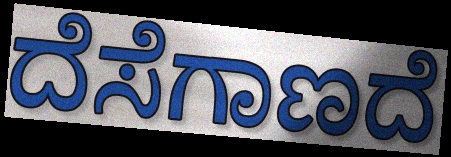
ದೆಸೆಗಾಣದೆ